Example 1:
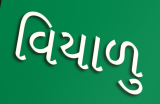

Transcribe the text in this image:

વિયાળુ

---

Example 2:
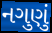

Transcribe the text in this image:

નગુણું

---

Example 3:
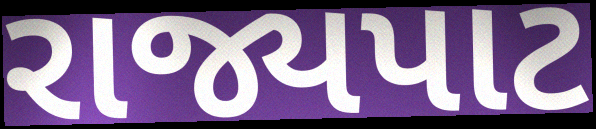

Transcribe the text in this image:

રાજ્યપાટ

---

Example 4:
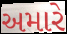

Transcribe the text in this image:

અમારે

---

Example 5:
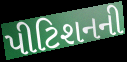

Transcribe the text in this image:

પીટિશનની